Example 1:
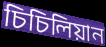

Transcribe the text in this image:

চিচিলিয়ান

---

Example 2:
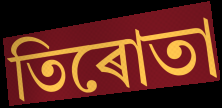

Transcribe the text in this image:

তিৰোতা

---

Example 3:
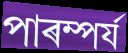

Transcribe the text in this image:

পাৰম্পৰ্য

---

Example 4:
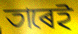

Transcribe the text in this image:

তাৰেই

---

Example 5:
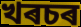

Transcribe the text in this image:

খৰচৰ